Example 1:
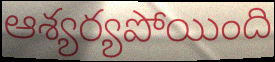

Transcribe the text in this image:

ఆశ్యర్యపోయింది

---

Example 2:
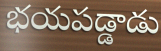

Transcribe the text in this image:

భయపడ్డాడు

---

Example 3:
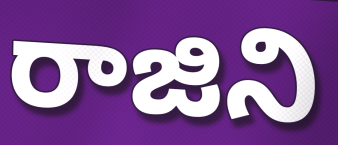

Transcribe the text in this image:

రాజిని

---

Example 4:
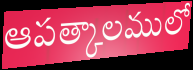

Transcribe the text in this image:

ఆపత్కాలములో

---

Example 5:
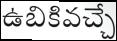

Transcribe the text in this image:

ఉబికివచ్చే